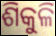
ଶିକୁଳି